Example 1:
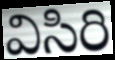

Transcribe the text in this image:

విసిరి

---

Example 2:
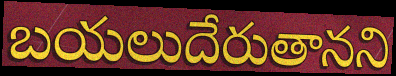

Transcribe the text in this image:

బయలుదేరుతానని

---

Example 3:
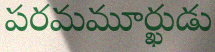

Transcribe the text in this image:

పరమమూర్ఖుడు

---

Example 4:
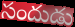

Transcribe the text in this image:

సందుడు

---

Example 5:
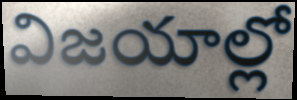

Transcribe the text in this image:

విజయాల్లో